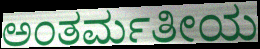
ಅಂತರ್ಮತೀಯ